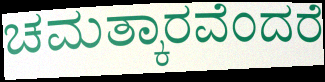
ಚಮತ್ಕಾರವೆಂದರೆ